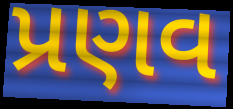
પ્રણવ